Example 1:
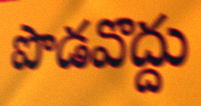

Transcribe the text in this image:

పొడవొద్దు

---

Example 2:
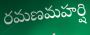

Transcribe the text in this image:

రమణమహర్షి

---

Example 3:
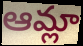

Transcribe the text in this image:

ఆమ్లా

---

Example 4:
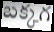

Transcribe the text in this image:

బక్కగ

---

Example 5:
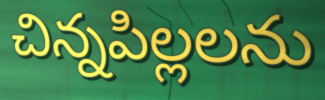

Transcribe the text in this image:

చిన్నపిల్లలను